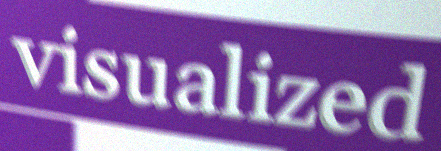
visualized